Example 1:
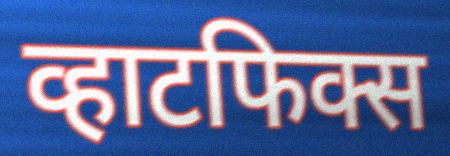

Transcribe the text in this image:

व्हाटफिक्स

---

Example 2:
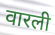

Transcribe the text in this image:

वारली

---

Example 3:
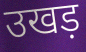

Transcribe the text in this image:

उखड़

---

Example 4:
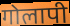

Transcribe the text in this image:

गोलापी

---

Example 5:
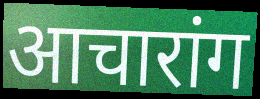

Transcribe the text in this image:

आचारांग